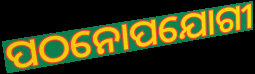
ପଠନୋପଯୋଗୀ